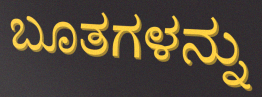
ಬೂತಗಳನ್ನು